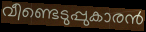
വീണ്ടെടുപ്പുകാരൻ